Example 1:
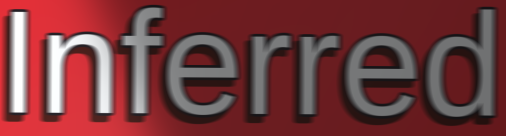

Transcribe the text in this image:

Inferred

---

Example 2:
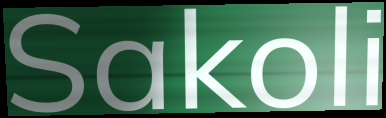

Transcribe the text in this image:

Sakoli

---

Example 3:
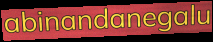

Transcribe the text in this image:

abinandanegalu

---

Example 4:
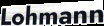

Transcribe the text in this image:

Lohmann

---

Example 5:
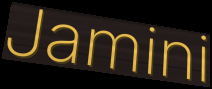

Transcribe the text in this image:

Jamini